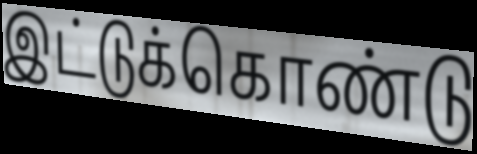
இட்டுக்கொண்டு